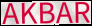
AKBAR